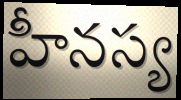
హీనస్య